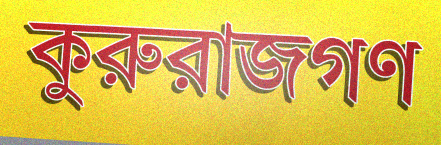
কুরুরাজগণ